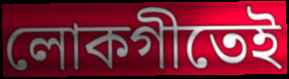
লোকগীতেই